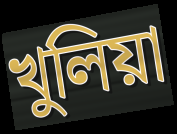
খুলিয়া